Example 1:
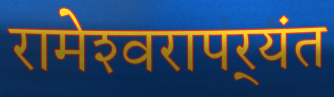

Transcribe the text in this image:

रामेश्वरापर्यंत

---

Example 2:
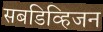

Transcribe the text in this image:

सबडिव्हिजन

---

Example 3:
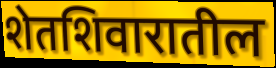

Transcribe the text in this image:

शेतशिवारातील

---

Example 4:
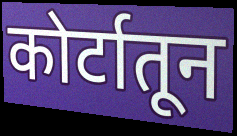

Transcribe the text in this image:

कोर्टातून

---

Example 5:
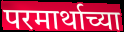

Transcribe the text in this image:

परमार्थाच्या